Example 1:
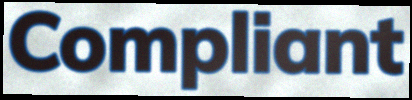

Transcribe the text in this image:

Compliant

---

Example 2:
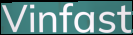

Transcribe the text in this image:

Vinfast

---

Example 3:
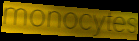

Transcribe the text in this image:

monocytes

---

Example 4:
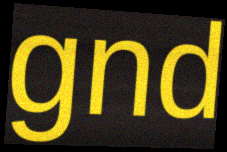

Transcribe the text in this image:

gnd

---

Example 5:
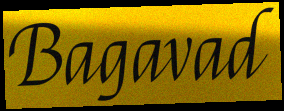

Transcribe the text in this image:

Bagavad